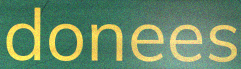
donees